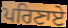
ਪਰਿਣਾਏ